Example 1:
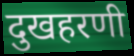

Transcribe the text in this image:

दुखहरणी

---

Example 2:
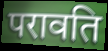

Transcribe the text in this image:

परावति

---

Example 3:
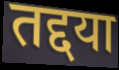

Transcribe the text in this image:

तद्दया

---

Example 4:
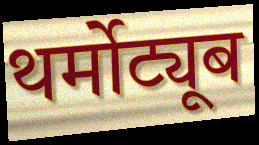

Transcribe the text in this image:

थर्मोट्यूब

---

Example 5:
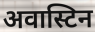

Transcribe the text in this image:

अवास्टिन